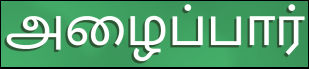
அழைப்பார்